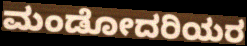
ಮಂಡೋದರಿಯರ